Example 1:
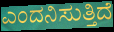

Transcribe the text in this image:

ಎಂದನಿಸುತ್ತಿದೆ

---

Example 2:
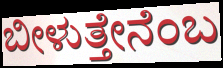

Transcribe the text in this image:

ಬೀಳುತ್ತೇನೆಂಬ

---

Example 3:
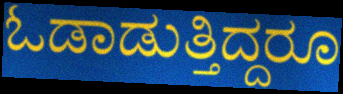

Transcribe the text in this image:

ಓಡಾಡುತ್ತಿದ್ದರೂ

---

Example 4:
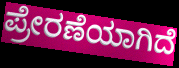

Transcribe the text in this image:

ಪ್ರೇರಣೆಯಾಗಿದೆ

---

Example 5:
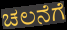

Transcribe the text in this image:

ಚಲನೆಗೆ